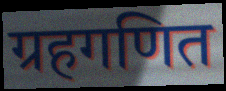
ग्रहगणित